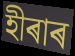
হীৰাৰ